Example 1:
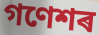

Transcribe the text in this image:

গণেশৰ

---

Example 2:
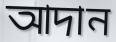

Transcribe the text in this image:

আদান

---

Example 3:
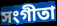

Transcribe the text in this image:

সংগীতা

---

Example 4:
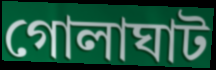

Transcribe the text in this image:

গোলাঘাট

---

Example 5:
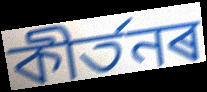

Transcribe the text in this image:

কীৰ্তনৰ